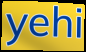
yehi